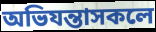
অভিযন্তাসকলে